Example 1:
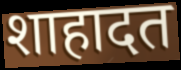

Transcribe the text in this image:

शाहादत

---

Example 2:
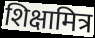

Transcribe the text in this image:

शिक्षामित्र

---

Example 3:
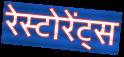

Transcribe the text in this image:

रेस्टोरेंट्स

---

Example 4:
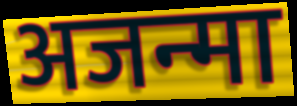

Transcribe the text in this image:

अजन्मा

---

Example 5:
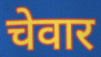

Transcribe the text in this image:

चेवार